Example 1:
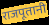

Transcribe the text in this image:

राजपूतानी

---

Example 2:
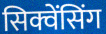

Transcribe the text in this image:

सिक्‍वेंसिंग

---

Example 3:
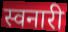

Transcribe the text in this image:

स्वनारी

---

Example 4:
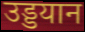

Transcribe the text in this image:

उड्डयान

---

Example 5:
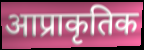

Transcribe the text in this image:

आप्राकृतिक